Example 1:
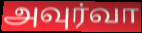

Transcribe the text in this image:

அவுர்வா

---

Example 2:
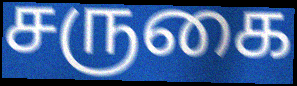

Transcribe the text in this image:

சருகை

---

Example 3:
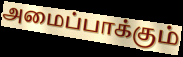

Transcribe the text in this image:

அமைப்பாக்கும்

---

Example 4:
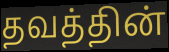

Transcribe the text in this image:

தவத்தின்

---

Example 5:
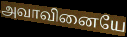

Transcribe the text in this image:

அவாவினையே